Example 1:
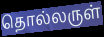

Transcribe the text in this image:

தொல்லருள்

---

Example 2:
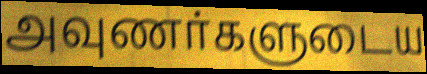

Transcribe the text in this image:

அவுணர்களுடைய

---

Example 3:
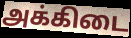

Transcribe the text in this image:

அக்கிடை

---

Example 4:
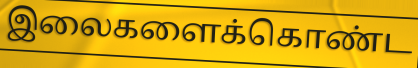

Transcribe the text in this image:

இலைகளைக்கொண்ட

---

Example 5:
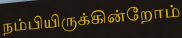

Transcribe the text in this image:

நம்பியிருக்கின்றோம்